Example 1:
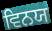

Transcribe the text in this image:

ਵਿਨਯ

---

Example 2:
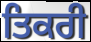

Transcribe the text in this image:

ਤਿਕਰੀ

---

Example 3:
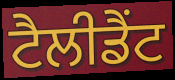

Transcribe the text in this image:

ਟੈਲੀਡੈਂਟ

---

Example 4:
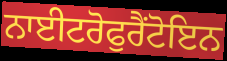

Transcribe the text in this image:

ਨਾਈਟਰੋਫੁਰੈਂਟੋਇਨ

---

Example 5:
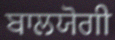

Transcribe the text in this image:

ਬਾਲਯੋਗੀ